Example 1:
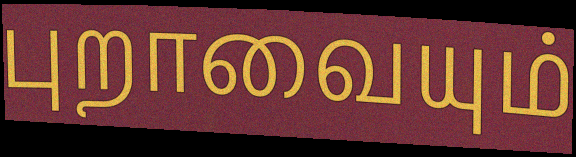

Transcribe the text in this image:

புறாவையும்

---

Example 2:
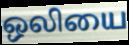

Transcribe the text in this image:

ஒலியை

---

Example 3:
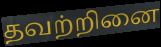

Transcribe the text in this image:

தவற்றினை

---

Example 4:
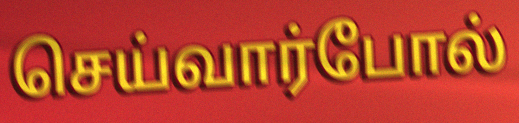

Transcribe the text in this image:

செய்வார்போல்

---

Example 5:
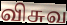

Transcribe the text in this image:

விசுவ